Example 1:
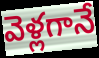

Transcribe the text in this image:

వెళ్లగానే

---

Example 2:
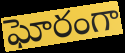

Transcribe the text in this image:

ఘోరంగా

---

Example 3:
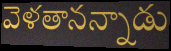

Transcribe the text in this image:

వెళతానన్నాడు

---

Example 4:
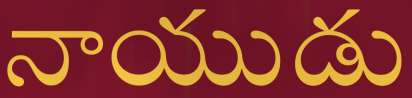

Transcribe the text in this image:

నాయుడు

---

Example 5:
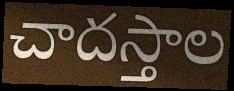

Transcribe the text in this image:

చాదస్తాల